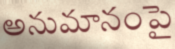
అనుమానంపై